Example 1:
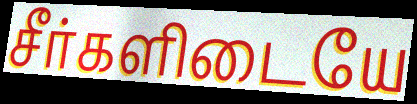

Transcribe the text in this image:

சீர்களிடையே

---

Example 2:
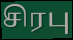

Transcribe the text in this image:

சிரபு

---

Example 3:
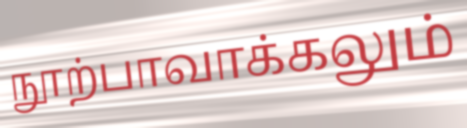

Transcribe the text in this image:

நூற்பாவாக்கலும்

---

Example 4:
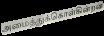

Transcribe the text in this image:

அமைத்துக்கொள்கின்றன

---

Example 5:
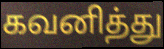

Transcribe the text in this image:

கவனித்து